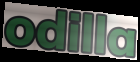
odilla